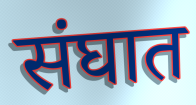
संघात